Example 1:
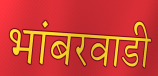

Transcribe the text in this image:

भांबरवाडी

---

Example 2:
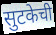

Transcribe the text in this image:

सुटकेची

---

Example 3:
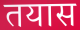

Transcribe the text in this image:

तयास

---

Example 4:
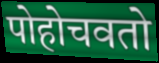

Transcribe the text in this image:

पोहोचवतो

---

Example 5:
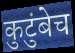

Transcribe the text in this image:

कुटुंबेच